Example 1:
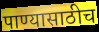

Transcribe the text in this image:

पाण्यासाठीच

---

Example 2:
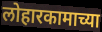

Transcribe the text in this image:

लोहारकामाच्या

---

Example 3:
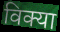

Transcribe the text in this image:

विक्या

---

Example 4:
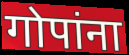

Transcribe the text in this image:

गोपांना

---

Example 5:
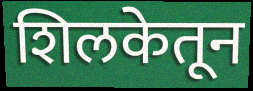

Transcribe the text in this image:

शिलकेतून